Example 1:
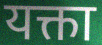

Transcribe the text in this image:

यक्ता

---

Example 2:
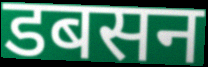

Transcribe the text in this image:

डबसन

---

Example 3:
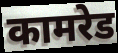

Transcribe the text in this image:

कामरेड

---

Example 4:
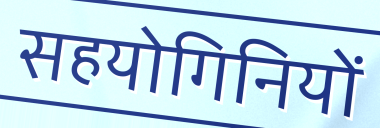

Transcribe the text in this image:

सहयोगिनियों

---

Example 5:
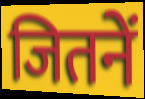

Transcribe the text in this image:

जितनें